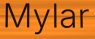
Mylar